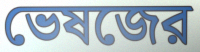
ভেষজের